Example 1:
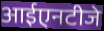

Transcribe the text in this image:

आईएनटीजे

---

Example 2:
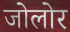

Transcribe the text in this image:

जोलोर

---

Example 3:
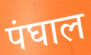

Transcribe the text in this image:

पंघाल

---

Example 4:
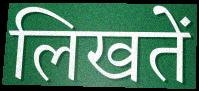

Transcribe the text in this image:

लिखतें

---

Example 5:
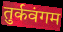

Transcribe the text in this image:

तुर्कवंगम